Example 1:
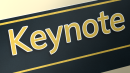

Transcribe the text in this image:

Keynote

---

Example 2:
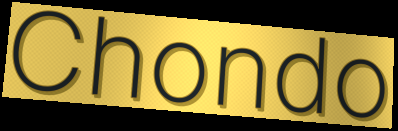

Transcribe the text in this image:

Chondo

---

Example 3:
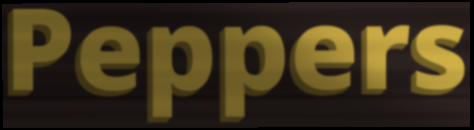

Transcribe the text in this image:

Peppers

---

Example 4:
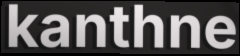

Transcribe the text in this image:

kanthne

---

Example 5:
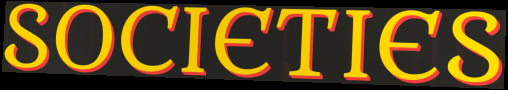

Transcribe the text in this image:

SOCIETIES